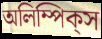
অলিম্পিক্‌স